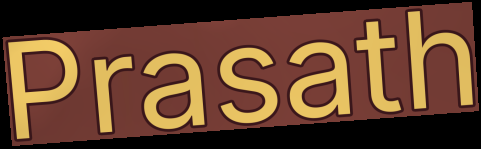
Prasath